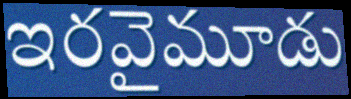
ఇరవైమూడు